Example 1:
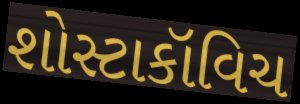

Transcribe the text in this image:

શોસ્ટાકૉવિચ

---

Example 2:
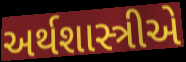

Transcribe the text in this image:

અર્થશાસ્ત્રીએ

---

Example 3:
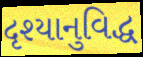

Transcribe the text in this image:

દૃશ્યાનુવિદ્ધ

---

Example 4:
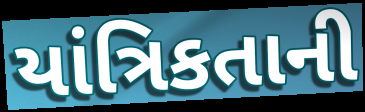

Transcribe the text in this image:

યાંત્રિકતાની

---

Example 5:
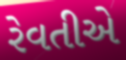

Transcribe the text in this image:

રેવતીએ